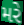
મરે